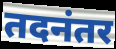
तदनंतर